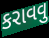
કરાવવુ